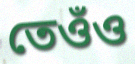
তেওঁও